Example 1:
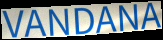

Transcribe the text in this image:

VANDANA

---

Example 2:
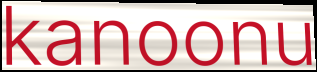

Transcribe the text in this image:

kanoonu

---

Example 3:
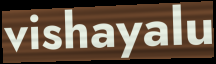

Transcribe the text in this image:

vishayalu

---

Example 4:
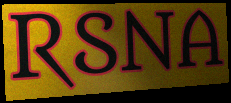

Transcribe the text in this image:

RSNA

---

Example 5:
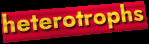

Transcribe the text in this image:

heterotrophs